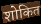
शोकित